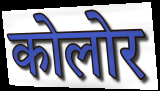
कोलोर